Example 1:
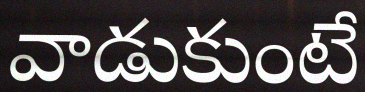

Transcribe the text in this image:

వాడుకుంటే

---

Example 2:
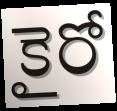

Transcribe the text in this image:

కైరో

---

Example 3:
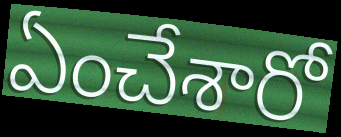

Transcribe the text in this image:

ఏంచేశారో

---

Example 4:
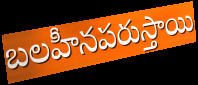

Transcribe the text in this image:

బలహీనపరుస్తాయి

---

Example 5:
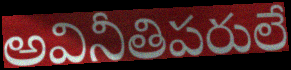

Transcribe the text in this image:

అవినీతిపరులే